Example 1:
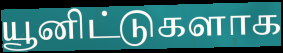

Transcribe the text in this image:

யூனிட்டுகளாக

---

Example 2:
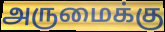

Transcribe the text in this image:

அருமைக்கு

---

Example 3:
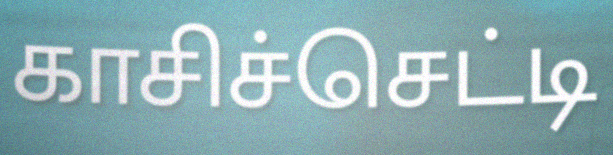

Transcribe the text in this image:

காசிச்செட்டி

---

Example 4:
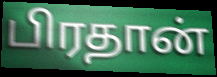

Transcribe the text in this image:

பிரதான்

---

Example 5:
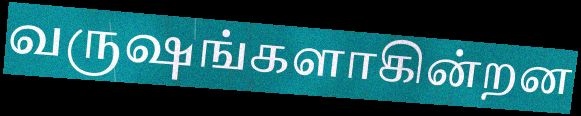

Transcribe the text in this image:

வருஷங்களாகின்றன